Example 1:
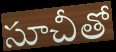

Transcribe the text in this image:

సూచీతో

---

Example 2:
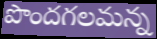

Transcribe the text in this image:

పొందగలమన్న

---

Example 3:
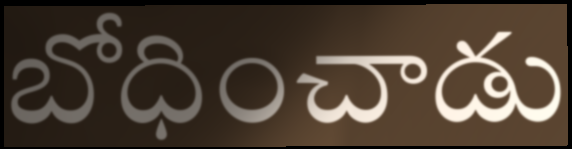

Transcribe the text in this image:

బోధించాడు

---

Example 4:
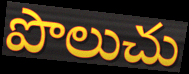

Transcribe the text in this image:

పొలుచు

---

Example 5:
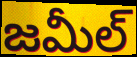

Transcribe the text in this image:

జమీల్